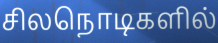
சிலநொடிகளில்